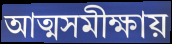
আত্মসমীক্ষায়